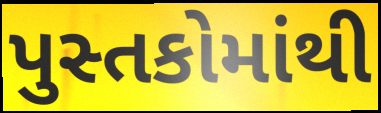
પુસ્તકોમાંથી